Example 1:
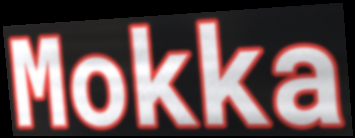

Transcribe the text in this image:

Mokka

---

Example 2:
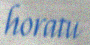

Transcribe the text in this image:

horatu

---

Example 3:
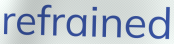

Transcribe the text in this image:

refrained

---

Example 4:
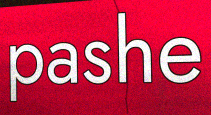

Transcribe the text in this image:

pashe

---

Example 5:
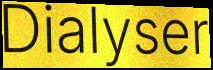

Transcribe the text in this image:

Dialyser